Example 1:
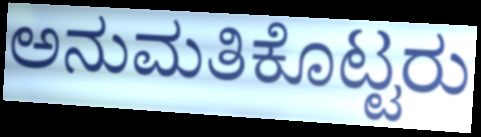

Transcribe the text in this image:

ಅನುಮತಿಕೊಟ್ಟರು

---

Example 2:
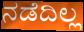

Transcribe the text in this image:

ನಡೆದಿಲ್ಲ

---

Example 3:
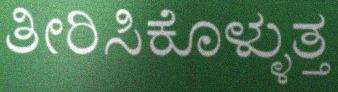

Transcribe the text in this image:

ತೀರಿಸಿಕೊಳ್ಳುತ್ತ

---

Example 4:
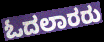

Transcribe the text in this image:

ಓದಲಾರರು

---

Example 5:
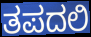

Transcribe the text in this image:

ತಪದಲಿ